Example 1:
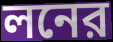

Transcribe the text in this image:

লনের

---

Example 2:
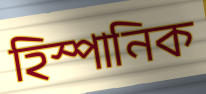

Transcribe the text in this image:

হিস্পানিক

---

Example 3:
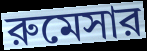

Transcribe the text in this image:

রুমেসার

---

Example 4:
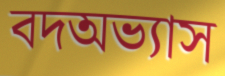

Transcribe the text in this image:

বদঅভ্যাস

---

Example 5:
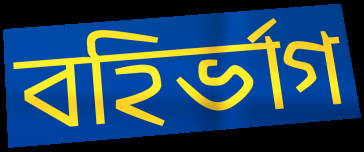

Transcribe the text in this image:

বহির্ভাগ